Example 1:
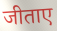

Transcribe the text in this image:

जीताए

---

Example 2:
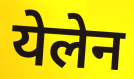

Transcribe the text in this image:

येलेन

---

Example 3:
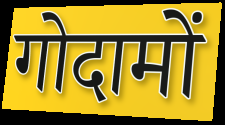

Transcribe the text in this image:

गोदामों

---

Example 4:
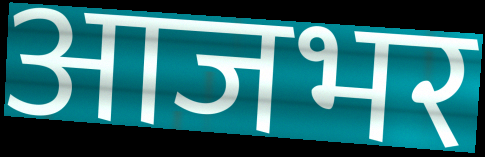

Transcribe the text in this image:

आजभर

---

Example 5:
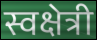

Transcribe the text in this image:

स्वक्षेत्री